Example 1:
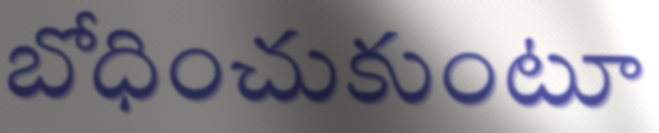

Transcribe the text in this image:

బోధించుకుంటూ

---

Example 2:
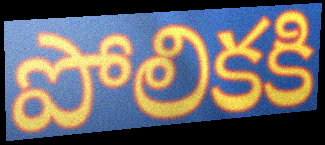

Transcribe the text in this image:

పోలికకి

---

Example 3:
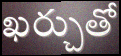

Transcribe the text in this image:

ఖర్చుతో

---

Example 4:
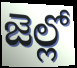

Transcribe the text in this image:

జెల్లో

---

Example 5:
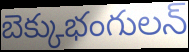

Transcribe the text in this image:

బెక్కుభంగులన్